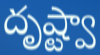
దృష్ట్వా